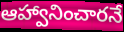
ఆహ్వానించారనే